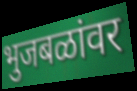
भुजबळांवर